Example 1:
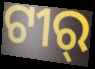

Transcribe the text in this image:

ଟୀର୍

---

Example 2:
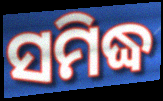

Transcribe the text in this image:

ସମିଦ୍ଧ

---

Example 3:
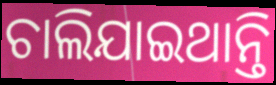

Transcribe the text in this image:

ଚାଲିଯାଇଥାନ୍ତି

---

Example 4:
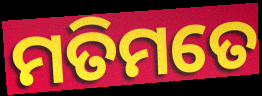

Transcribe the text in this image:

ମତିମତେ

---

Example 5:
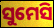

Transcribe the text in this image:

ସୁମେସି